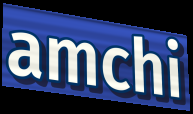
amchi